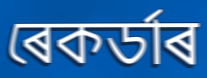
ৰেকৰ্ডাৰ